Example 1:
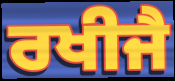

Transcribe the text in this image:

ਰਖੀਜੈ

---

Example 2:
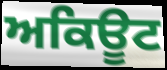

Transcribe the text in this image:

ਅਕਿਊਟ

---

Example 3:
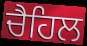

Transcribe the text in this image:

ਚੈਹਿਲ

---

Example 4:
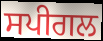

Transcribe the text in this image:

ਸਪੀਗਲ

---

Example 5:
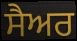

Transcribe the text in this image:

ਸੈਅਰ